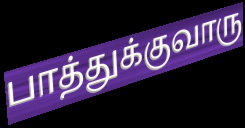
பாத்துக்குவாரு